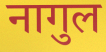
नागुल